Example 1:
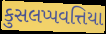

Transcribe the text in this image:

કુસલપ્પવત્તિયા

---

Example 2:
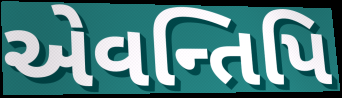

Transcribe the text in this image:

એવન્તિપિ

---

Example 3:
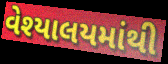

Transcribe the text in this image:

વેશ્યાલયમાંથી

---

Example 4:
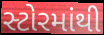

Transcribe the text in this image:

સ્ટોરમાંથી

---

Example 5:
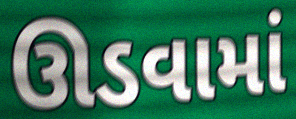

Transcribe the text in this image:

ઊડવામાં